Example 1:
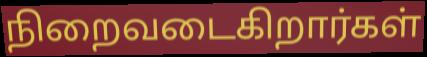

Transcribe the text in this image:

நிறைவடைகிறார்கள்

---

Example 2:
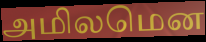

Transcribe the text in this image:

அமிலமென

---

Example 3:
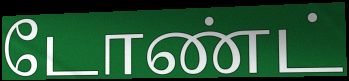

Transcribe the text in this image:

டோண்ட்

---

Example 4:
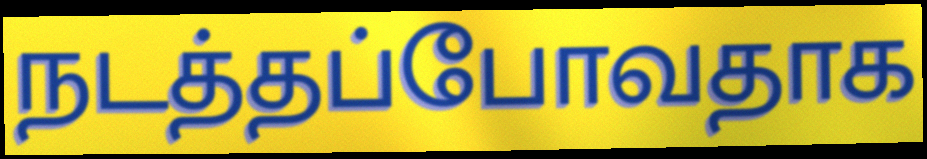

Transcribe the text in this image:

நடத்தப்போவதாக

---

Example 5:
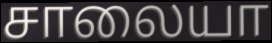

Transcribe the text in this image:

சாலையா